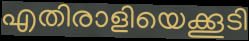
എതിരാളിയെക്കൂടി